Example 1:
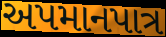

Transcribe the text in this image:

અપમાનપાત્ર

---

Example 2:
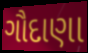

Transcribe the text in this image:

ગૌદાણા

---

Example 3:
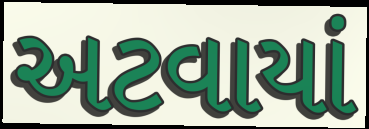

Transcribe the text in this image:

અટવાયાં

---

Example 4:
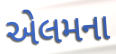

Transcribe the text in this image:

એલમના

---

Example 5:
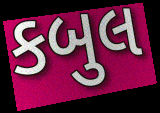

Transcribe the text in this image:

કબુલ